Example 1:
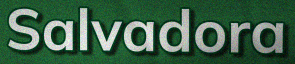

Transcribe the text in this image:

Salvadora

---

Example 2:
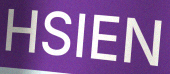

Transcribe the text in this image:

HSIEN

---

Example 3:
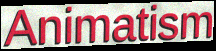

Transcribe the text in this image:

Animatism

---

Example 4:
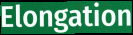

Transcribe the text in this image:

Elongation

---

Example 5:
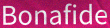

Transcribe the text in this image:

Bonafide